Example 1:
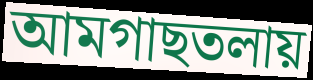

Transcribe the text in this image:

আমগাছতলায়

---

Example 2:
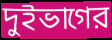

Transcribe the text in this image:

দুইভাগের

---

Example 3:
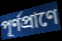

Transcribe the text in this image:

পূর্ণপ্রাণে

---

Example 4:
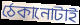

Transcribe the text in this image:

ঠেকানোটাই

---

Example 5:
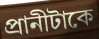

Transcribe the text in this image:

প্রানীটাকে